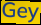
Gey